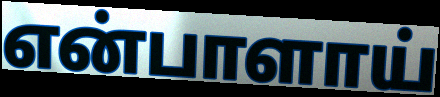
என்பாளாய்